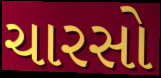
ચારસો